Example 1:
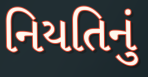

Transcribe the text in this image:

નિયતિનું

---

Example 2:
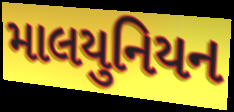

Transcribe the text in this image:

માલયુનિયન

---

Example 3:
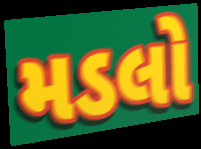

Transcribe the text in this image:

મડલો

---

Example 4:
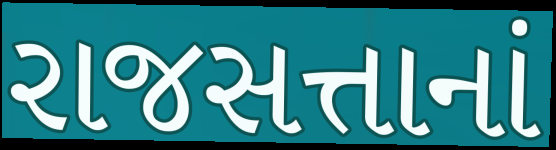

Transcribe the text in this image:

રાજસત્તાનાં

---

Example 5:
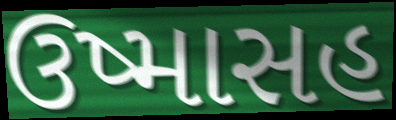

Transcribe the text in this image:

ઉષ્માસહ